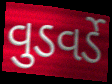
વુડવર્ડે